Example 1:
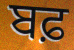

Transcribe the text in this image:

ਬਫ਼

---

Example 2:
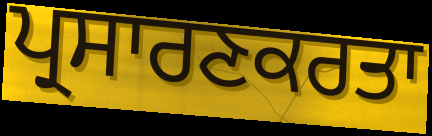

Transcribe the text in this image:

ਪ੍ਰਸਾਰਣਕਰਤਾ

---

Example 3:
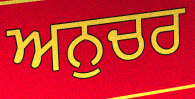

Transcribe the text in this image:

ਅਨੁਚਰ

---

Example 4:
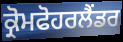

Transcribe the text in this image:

ਕ੍ਰੋਮਫੋਹਰਲੈਂਡਰ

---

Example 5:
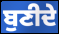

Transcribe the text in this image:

ਬੁਣੀਦੇ